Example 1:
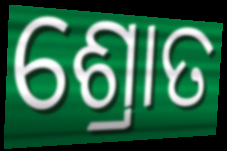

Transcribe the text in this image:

ଶ୍ରୋତ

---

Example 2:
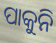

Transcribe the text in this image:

ପାକୁନି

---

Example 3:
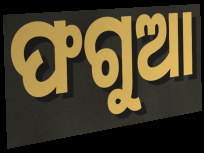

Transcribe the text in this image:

ଫଗୁଆ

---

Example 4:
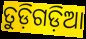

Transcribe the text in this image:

ତୁଡ଼ିଗଡ଼ିଆ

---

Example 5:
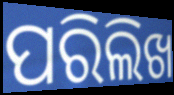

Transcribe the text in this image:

ପରିଲିଖ